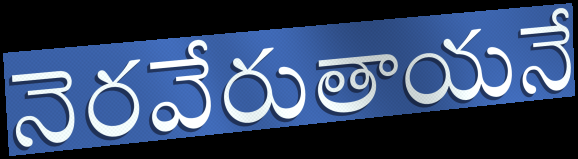
నెరవేరుతాయనే